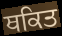
ਥਕਿਤ